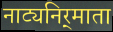
नाट्यनिर्माता